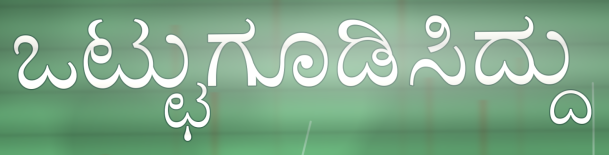
ಒಟ್ಟುಗೂಡಿಸಿದ್ದು